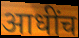
आधींच